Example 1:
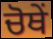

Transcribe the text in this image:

ਚੋਥੇਂ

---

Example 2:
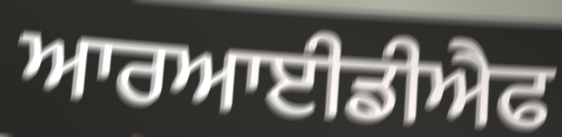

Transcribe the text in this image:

ਆਰਆਈਡੀਐਫ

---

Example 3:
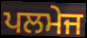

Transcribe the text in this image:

ਪਲਮੇਜ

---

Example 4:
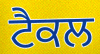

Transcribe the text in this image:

ਟੈਕਲ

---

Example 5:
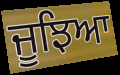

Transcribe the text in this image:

ਜੂਝਿਆ